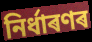
নিৰ্ধাৰণৰ